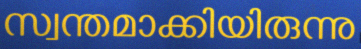
സ്വന്തമാക്കിയിരുന്നു